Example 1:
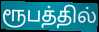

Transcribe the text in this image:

ரூபத்தில்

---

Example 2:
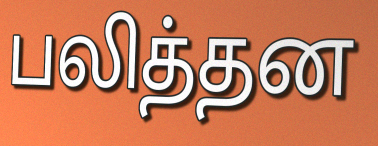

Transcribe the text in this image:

பலித்தன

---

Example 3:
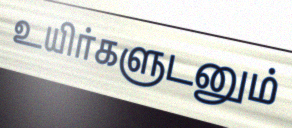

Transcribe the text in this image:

உயிர்களுடனும்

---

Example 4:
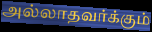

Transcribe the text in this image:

அல்லாதவர்க்கும்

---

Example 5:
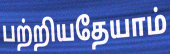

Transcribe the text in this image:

பற்றியதேயாம்